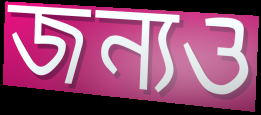
জন্যও